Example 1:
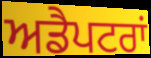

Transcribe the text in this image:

ਅਡੈਪਟਰਾਂ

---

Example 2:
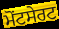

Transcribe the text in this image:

ਮੋਂਟਸੇਰਟ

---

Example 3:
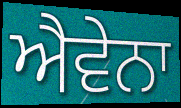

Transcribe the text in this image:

ਐਵੇਨਾ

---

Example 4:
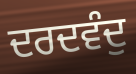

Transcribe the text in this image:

ਦਰਦਵੰਦੁ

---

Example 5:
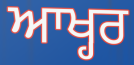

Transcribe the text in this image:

ਆਖ੍ਹਰ